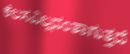
ಕೆಲಸವಿಲ್ಲದಂತಾಗುತ್ತದೆ